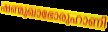
ഷണ്മുഖാഭോരുഹാണി